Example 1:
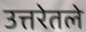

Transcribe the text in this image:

उत्तरेतले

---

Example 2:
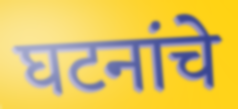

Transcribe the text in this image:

घटनांचे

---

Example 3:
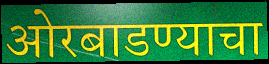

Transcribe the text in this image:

ओरबाडण्याचा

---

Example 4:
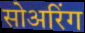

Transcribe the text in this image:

सोअरिंग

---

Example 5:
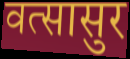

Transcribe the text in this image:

वत्सासुर